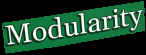
Modularity